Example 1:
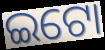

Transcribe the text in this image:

ଇଟୋ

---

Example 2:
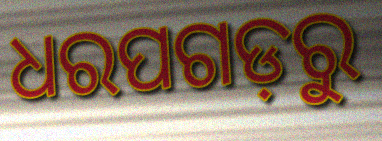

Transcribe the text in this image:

ଧରପଗଡ଼ରୁ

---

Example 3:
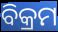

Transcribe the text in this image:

ବିକ୍ରମ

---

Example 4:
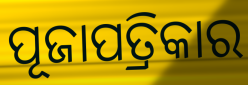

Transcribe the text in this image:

ପୂଜାପତ୍ରିକାର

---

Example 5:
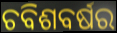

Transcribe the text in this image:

ଚବିଶବର୍ଷର